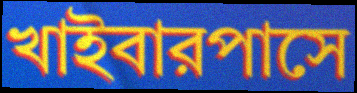
খাইবারপাসে